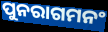
ପୁନରାଗମନଂ